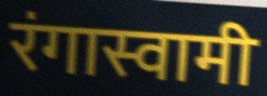
रंगास्वामी